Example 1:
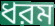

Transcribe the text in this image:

ধরম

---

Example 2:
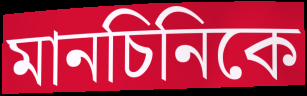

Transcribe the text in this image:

মানচিনিকে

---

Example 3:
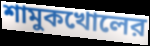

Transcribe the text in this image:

শামুকখোলের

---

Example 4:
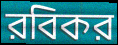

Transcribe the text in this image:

রবিকর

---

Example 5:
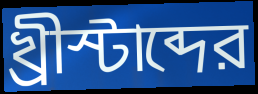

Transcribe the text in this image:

খ্রীস্টাব্দের